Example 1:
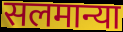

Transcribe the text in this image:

सलमान्या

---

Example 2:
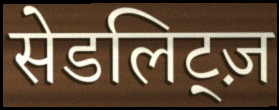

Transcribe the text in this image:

सेडलिट्ज़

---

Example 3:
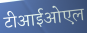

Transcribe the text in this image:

टीआईओएल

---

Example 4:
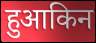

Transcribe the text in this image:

हुआकिन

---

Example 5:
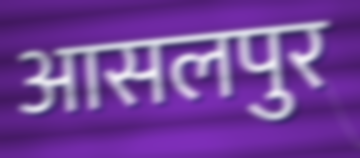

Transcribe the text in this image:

आसलपुर